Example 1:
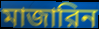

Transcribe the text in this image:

মাজারিন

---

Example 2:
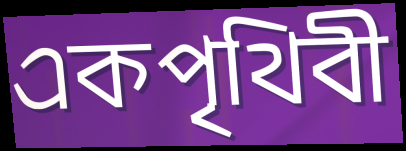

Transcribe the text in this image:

একপৃথিবী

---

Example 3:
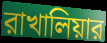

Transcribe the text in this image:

রাখালিয়ার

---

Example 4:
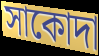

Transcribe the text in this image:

সাকোদা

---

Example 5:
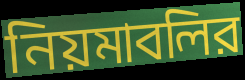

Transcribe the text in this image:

নিয়মাবলির